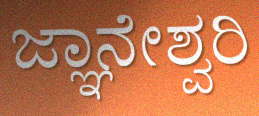
ಜ್ಞಾನೇಶ್ವರಿ